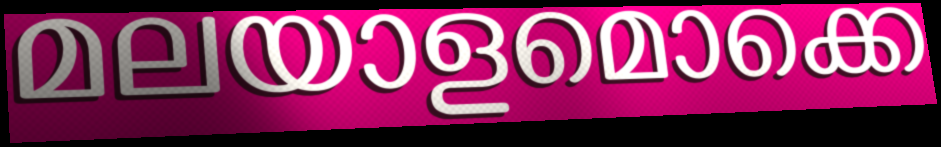
മലയാളമൊക്കെ